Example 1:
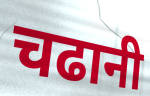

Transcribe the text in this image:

चढानी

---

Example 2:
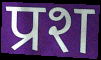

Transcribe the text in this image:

प्रश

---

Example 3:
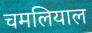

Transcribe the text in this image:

चमलियाल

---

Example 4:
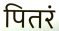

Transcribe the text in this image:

पितरं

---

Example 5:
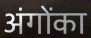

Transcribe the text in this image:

अंगोंका